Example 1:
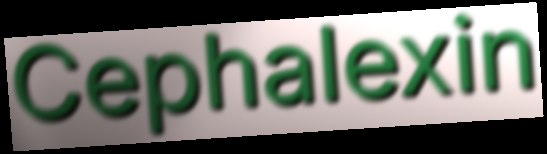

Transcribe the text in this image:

Cephalexin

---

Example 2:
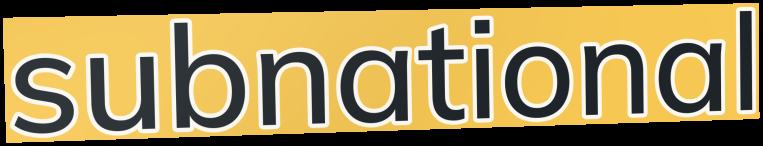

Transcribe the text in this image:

subnational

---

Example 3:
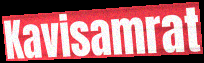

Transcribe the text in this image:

Kavisamrat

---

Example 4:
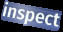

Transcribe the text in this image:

inspect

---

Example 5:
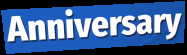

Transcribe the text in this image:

Anniversary